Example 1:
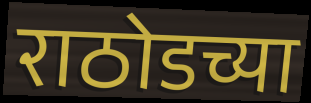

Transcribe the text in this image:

राठोडच्या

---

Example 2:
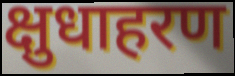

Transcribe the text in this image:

क्षुधाहरण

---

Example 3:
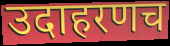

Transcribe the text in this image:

उदाहरणच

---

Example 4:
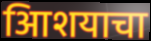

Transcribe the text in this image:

आिशयाचा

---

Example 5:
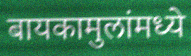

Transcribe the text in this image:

बायकामुलांमध्ये